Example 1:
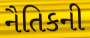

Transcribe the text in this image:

નૈતિકની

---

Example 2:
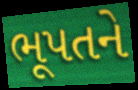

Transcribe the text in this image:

ભૂપતને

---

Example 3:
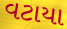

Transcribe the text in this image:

વટાયા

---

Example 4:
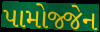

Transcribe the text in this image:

પામોજ્જેન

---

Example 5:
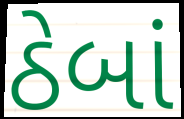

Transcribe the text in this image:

ઠેબાં